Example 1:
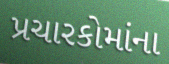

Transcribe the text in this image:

પ્રચારકોમાંના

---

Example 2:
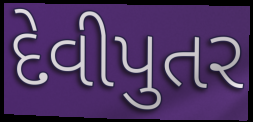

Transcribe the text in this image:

દેવીપુતર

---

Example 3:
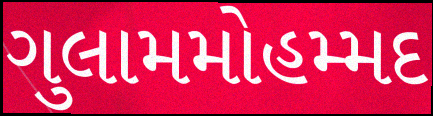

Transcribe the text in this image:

ગુલામમોહમ્મદ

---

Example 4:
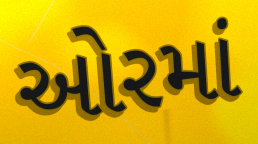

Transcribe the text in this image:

ઓરમાં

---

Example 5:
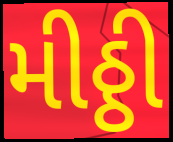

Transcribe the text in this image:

મીઠ્ઠી